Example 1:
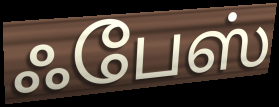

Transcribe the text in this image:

ஃபேஸ்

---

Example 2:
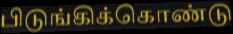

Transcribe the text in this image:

பிடுங்கிக்கொண்டு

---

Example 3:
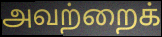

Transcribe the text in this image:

அவற்றைக்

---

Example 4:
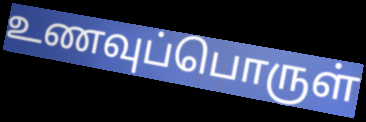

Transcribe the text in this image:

உணவுப்பொருள்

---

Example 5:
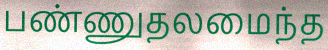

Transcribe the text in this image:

பண்ணுதலமைந்த